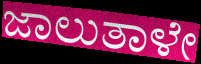
ಜಾಲುತಾಳೇ